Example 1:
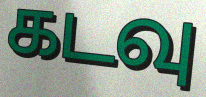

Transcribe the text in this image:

கடவு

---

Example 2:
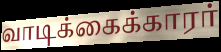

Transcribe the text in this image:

வாடிக்கைக்காரர்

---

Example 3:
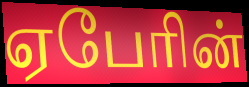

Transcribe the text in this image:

ஏபேரின்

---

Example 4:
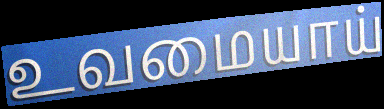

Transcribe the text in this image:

உவமையாய்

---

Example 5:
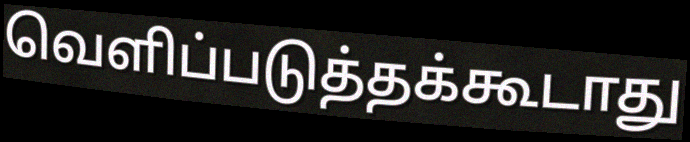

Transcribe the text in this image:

வெளிப்படுத்தக்கூடாது